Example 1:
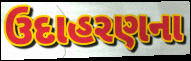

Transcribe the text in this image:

ઉદાહરણના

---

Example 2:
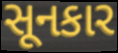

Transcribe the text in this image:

સૂનકાર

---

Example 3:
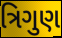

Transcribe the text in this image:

ત્રિગુણ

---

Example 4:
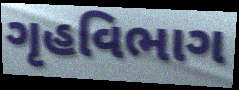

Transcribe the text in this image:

ગૃહવિભાગ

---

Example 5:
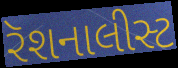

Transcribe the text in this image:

રૅશનાલીસ્ટ